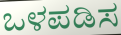
ಒಳಪಡಿಸ